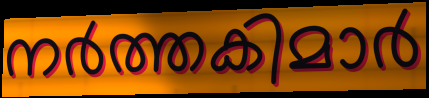
നർത്തകിമാർ